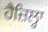
ਹੈਜ਼ਿਲ੍ਹਾ